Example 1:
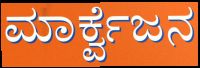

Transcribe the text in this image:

ಮಾರ್ಕ್ವೆಜನ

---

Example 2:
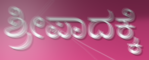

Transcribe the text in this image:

ಶ್ರೀಪಾದಕ್ಕೆ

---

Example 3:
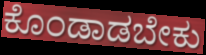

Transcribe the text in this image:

ಕೊಂಡಾಡಬೇಕು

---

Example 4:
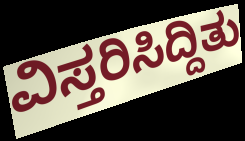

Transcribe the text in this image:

ವಿಸ್ತರಿಸಿದ್ದಿತು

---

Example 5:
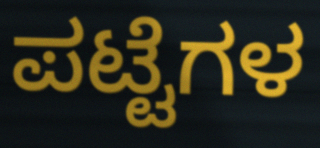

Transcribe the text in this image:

ಪಟ್ಟೆಗಳ